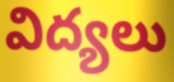
విద్యలు